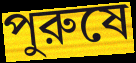
পুরুষে